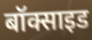
बॉक्साइड